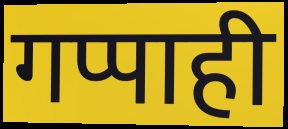
गप्पाही